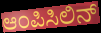
ಆಂಪಿಸಿಲಿನ್